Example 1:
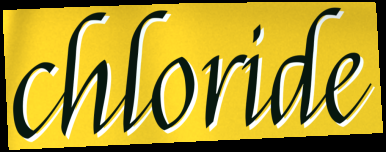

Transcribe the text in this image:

chloride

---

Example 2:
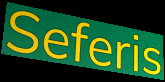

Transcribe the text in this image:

Seferis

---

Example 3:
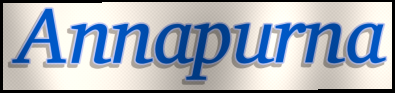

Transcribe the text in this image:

Annapurna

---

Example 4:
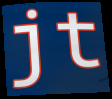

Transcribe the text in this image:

jt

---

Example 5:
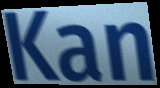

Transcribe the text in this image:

Kan